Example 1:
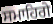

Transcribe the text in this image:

ਸਮਾਹਿਗੇ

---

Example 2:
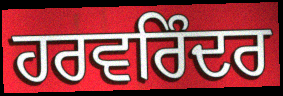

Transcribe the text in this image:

ਹਰਵਰਿੰਦਰ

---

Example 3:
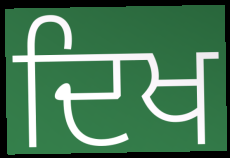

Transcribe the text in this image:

ਦਿਖ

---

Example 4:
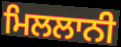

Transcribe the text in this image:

ਮਿਲਲਾਨੀ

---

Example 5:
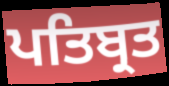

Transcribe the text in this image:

ਪਤਿਬ੍ਰਤ